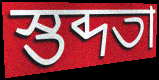
স্তব্দতা